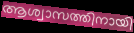
ആശ്വാസത്തിനായി